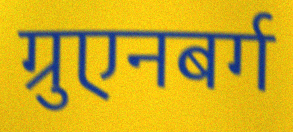
ग्रुएनबर्ग